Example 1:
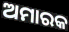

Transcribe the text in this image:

ଅମାରକ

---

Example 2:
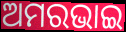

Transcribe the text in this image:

ଅମରଭାଇ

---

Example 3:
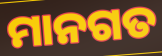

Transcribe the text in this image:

ମାନଗତ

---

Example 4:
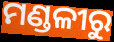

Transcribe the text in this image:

ମଣ୍ଡଳୀରୁ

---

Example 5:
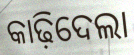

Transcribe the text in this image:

କାଢ଼ିଦେଲା